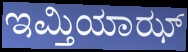
ಇಮ್ತಿಯಾಝ್